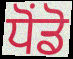
ਧੋਂਡੋ